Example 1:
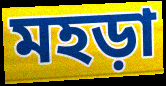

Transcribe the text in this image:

মহড়া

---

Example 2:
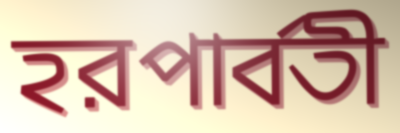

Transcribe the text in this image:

হরপার্বতী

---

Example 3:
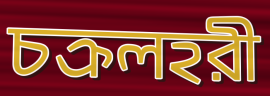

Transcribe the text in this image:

চক্রলহরী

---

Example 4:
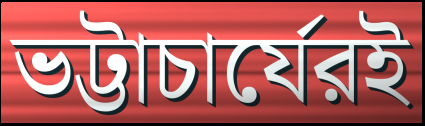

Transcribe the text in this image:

ভট্টাচার্যেরই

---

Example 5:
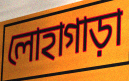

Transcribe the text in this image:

লোহাগাড়া